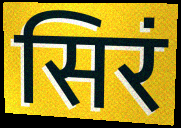
सिरं